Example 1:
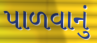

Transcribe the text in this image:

પાળવાનું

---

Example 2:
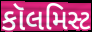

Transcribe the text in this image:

કૉલમિસ્ટ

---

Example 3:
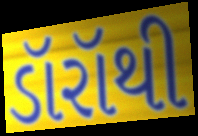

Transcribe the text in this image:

ડૉરૉથી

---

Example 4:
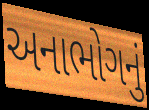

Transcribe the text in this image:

અનાભોગનું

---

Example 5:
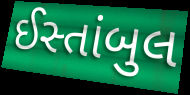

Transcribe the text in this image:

ઈસ્તાંબુલ